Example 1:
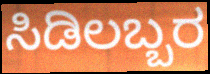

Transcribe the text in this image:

ಸಿಡಿಲಬ್ಬರ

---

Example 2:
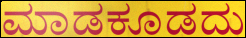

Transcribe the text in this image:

ಮಾಡಕೂಡದು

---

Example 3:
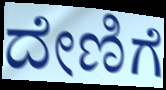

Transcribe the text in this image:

ದೇಣಿಗೆ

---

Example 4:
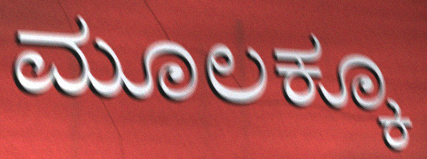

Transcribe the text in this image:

ಮೂಲಕ್ಕೂ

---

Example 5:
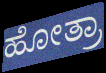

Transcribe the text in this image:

ಹೋತ್ರಾ